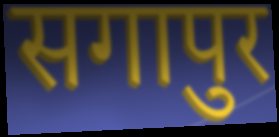
सगापुर